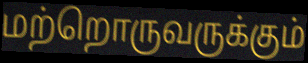
மற்றொருவருக்கும்